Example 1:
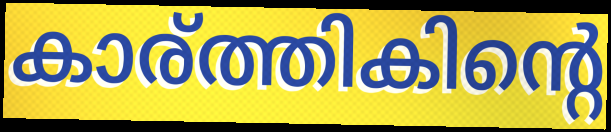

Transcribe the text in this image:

കാര്ത്തികിന്റെ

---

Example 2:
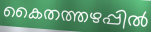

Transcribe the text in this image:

കൈതത്തഴപ്പിൽ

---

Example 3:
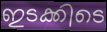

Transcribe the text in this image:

ഇടക്കിടെ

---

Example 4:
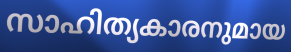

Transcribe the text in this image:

സാഹിത്യകാരനുമായ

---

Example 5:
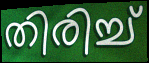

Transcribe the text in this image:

തിരിച്ച്